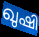
ഖുഷി